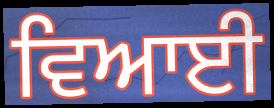
ਵਿਆਈ